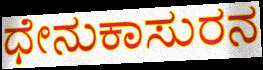
ಧೇನುಕಾಸುರನ